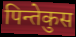
पिन्तेकुस